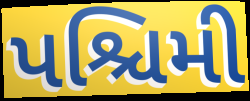
પશ્ચિમી